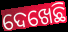
ଦେଖେଛି